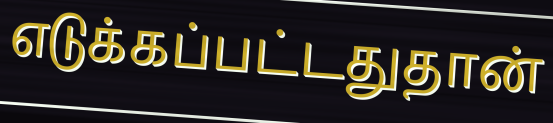
எடுக்கப்பட்டதுதான்